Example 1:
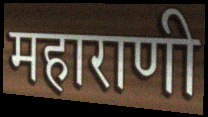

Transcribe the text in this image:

महाराणी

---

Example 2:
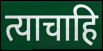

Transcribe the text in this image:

त्याचाहि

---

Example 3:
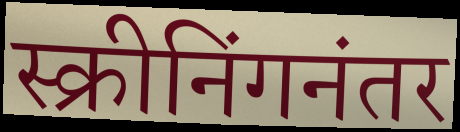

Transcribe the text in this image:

स्क्रीनिंगनंतर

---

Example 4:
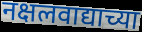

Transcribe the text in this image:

नक्षलवाद्याच्या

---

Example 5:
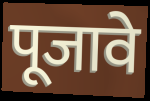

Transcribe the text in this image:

पूजावे